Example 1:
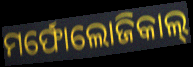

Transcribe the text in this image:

ମର୍ଫୋଲୋଜିକାଲ୍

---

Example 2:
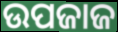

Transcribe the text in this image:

ଉପଜାଜ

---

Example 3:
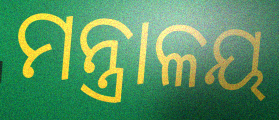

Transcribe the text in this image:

ମନ୍ତ୍ରାଳୟ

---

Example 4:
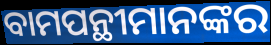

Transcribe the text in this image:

ବାମପନ୍ଥୀମାନଙ୍କର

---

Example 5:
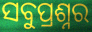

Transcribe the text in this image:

ସବୁପ୍ରଶ୍ନର